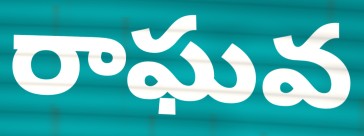
రాఘవ